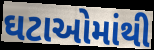
ઘટાઓમાંથી